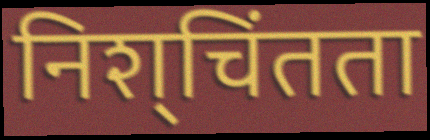
निश्चिंतता